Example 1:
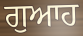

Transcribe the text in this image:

ਗੁਆਹ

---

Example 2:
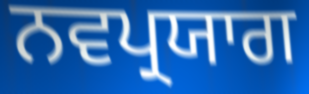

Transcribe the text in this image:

ਨਵਪ੍ਰਯਾਗ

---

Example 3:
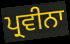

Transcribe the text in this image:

ਪ੍ਰਵੀਨਾ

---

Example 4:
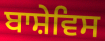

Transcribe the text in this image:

ਬਾਸ਼ੇਵਿਸ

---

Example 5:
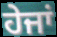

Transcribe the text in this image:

ਹੇਜਾਂ